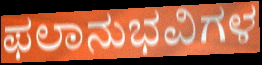
ಫಲಾನುಭವಿಗಳ